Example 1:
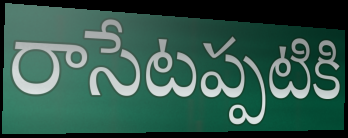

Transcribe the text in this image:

రాసేటప్పటికి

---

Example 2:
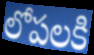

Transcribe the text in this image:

లోపలకి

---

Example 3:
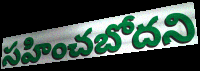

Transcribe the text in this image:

సహించబోదని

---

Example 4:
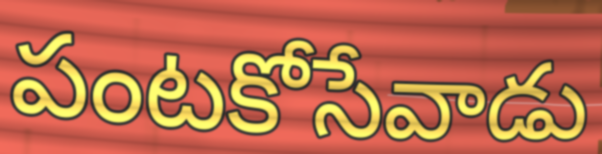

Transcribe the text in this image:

పంటకోసేవాడు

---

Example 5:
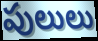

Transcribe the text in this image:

పులులు